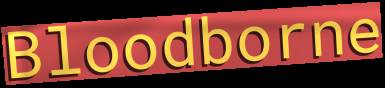
Bloodborne